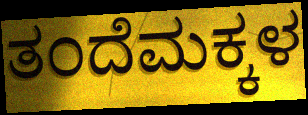
ತಂದೆಮಕ್ಕಳ